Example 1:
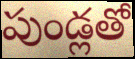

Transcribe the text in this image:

పుండ్లతో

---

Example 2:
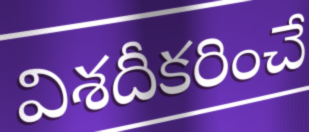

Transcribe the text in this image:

విశదీకరించే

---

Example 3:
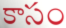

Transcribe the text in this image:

కాసం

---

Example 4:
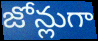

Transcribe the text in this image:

జోన్లుగా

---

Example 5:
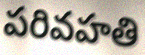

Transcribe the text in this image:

పరివహతి